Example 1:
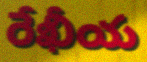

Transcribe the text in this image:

రేఖీయ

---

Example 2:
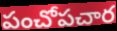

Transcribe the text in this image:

పంచోపచార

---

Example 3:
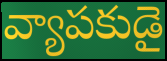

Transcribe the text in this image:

వ్యాపకుడై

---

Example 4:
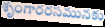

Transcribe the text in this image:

శృంగారరసమునకు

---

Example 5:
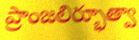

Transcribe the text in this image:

ప్రాంజలిర్భూత్వా